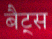
बैट्स